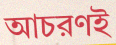
আচরণই